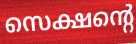
സെക്ഷന്റെ